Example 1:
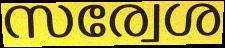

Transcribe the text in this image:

സര്വേശ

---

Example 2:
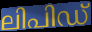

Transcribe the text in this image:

ലിപിഡ്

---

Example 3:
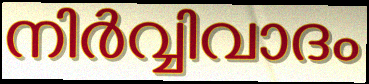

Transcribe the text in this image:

നിർവ്വിവാദം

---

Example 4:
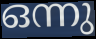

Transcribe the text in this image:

ഒന്നു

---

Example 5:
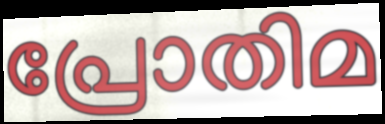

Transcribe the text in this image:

പ്രോതിമ